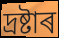
দ্ৰষ্টাৰ